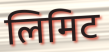
लिमिट